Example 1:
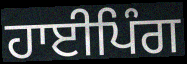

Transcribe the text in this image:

ਹਾਈਪਿੰਗ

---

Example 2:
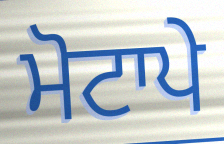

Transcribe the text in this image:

ਮੋਟਾਪੇ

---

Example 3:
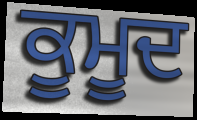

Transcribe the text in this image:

ਕੂਮੂਦ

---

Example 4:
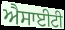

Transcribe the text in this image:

ਐਸਾਈਟੀ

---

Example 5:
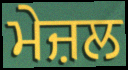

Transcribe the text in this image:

ਮੇਜ਼ਲ